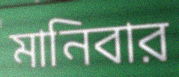
মানিবার